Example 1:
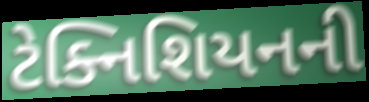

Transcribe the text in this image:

ટેક્નિશિયનની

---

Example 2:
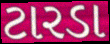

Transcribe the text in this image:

ટારડા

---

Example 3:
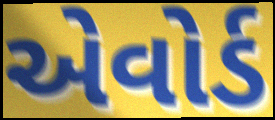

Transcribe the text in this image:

એવોર્ડ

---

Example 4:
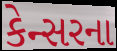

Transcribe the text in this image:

કેન્સરના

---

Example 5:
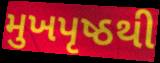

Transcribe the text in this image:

મુખપૃષ્ઠથી